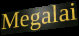
Megalai